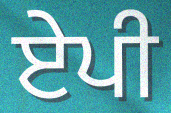
ਏਪੀ